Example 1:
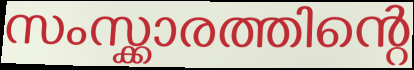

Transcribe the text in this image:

സംസ്ക്കാരത്തിന്റെ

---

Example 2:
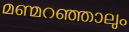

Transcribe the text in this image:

മണ്മറഞ്ഞാലും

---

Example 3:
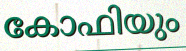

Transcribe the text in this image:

കോഫിയും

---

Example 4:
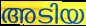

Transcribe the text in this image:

അടിയ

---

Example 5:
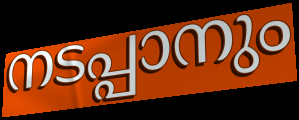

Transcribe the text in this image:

നടപ്പാനും